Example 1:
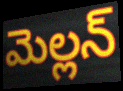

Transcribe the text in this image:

మెల్లన్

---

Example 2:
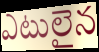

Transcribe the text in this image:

ఎటులైన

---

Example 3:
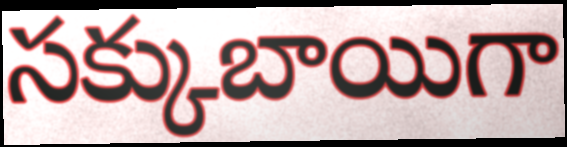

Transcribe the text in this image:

సక్కుబాయిగా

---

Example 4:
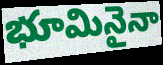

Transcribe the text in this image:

భూమినైనా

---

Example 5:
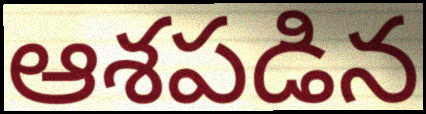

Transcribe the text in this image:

ఆశపడిన